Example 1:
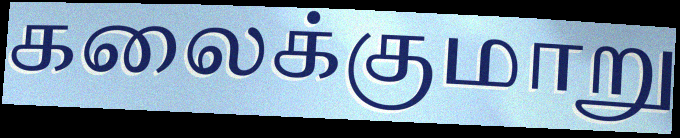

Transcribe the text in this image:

கலைக்குமாறு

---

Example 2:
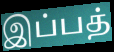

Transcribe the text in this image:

இப்பத்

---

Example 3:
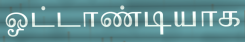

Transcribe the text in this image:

ஓட்டாண்டியாக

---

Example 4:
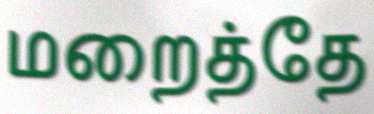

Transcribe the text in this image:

மறைத்தே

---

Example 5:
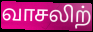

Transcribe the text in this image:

வாசலிற்